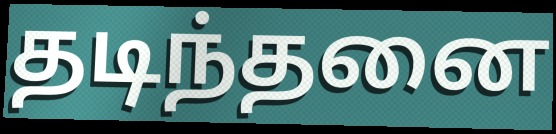
தடிந்தனை